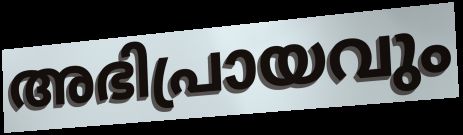
അഭിപ്രായവും